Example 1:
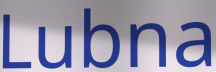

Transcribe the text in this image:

Lubna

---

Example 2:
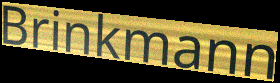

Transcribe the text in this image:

Brinkmann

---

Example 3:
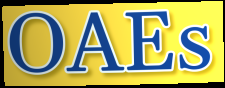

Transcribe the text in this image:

OAEs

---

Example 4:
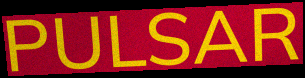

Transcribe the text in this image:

PULSAR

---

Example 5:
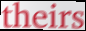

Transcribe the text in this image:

theirs